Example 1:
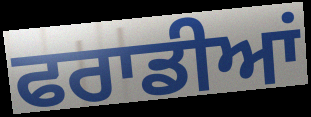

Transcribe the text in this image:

ਫਰਾਡੀਆਂ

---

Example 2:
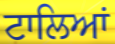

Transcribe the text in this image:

ਟਾਲਿਆਂ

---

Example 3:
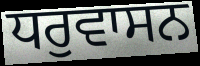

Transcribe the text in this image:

ਧਰੁਵਾਸਨ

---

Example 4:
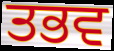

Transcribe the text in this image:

ਤਭਵ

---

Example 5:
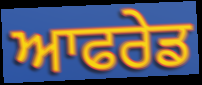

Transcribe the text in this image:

ਆਫਰੇਡ